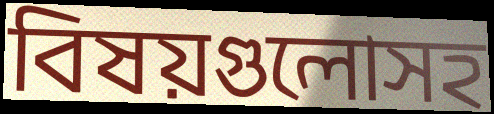
বিষয়গুলোসহ